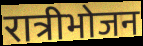
रात्रीभोजन